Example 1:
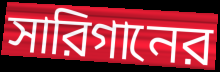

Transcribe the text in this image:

সারিগানের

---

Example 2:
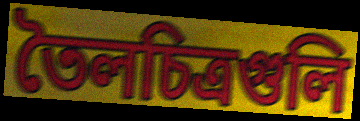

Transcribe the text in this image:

তৈলচিত্রগুলি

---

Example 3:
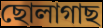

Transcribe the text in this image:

ছোলাগাছ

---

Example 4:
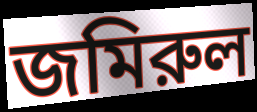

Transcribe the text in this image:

জমিরুল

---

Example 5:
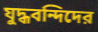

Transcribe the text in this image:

যুদ্ধবন্দিদের